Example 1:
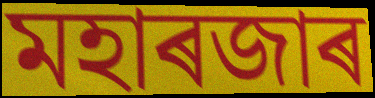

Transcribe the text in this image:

মহাৰজাৰ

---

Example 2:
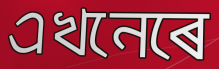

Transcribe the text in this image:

এখনেৰে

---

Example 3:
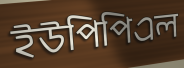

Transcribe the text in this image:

ইউপিপিএল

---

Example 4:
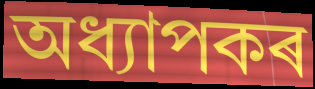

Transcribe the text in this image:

অধ্যাপকৰ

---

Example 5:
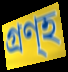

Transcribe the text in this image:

গ্ৰণ্হ